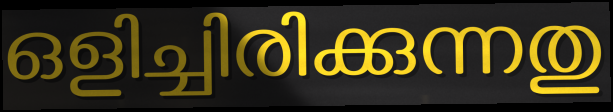
ഒളിച്ചിരിക്കുന്നതു